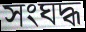
সংঘদ্ধ